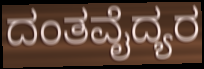
ದಂತವೈದ್ಯರ